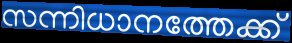
സന്നിധാനത്തേക്ക്